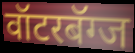
वॉटरबॅग्ज